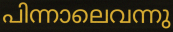
പിന്നാലെവന്നു